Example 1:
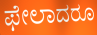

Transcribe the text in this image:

ಫೇಲಾದರೂ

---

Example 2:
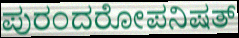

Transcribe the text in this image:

ಪುರಂದರೋಪನಿಷತ್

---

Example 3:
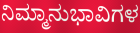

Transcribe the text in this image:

ನಿಮ್ಮಾನುಭಾವಿಗಳ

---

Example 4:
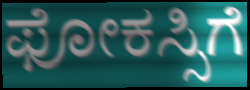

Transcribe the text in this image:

ಫೋಕಸ್ಸಿಗೆ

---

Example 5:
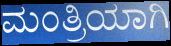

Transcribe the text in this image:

ಮಂತ್ರಿಯಾಗಿ